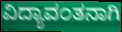
ವಿದ್ಯಾವಂತನಾಗಿ